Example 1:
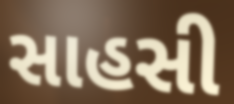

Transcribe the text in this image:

સાહસી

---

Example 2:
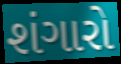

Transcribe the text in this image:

શંગારો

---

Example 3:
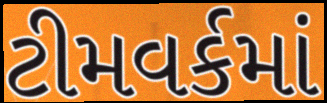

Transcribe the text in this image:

ટીમવર્કમાં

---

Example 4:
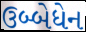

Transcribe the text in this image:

ઉબ્બેધેન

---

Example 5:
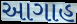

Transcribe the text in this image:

આગાહ